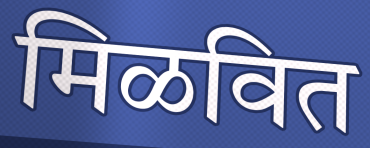
मिळवित